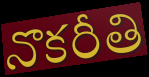
నొకరీతి